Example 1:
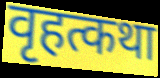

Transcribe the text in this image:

वृहत्कथा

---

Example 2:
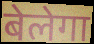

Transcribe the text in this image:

बेलेगा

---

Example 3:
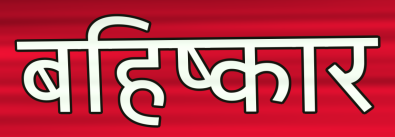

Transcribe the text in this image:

बहिष्कार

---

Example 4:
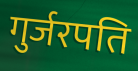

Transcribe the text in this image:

गुर्जरपति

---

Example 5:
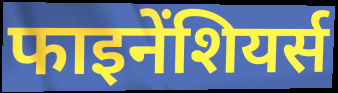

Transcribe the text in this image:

फाइनेंशियर्स